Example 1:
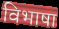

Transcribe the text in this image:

विभाषा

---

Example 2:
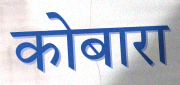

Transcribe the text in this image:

कोबारा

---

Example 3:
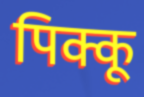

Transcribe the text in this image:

पिक्कू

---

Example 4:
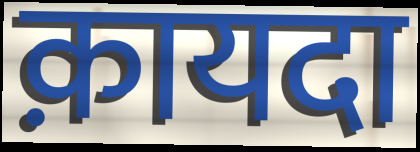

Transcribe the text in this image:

क़ायदा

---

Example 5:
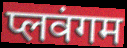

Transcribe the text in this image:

प्लवंगम